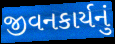
જીવનકાર્યનું